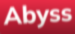
Abyss